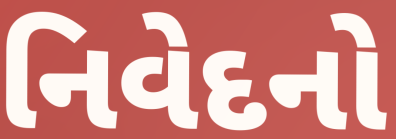
નિવેદનો